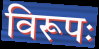
विरूपः